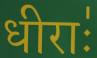
धीराः॑